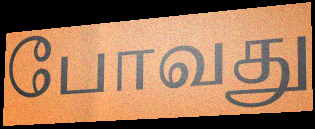
போவது